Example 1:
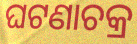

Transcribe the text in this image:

ଘଟଣାଚକ୍ର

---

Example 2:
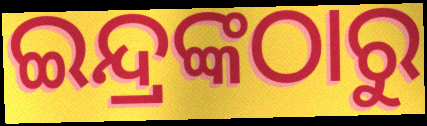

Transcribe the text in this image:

ଇନ୍ଦ୍ରଙ୍କଠାରୁ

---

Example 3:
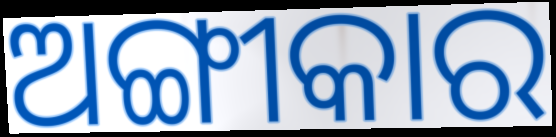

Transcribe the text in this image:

ଅଙ୍ଗୀକାର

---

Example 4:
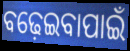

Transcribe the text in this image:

ବଢ଼େଇବାପାଇଁ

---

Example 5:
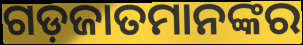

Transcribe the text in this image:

ଗଡ଼ଜାତମାନଙ୍କର